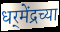
धर्मेंद्रच्या